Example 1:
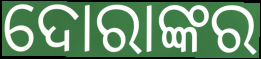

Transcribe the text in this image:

ଦୋରାଙ୍କର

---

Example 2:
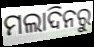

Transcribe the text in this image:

ମଲାଦିନରୁ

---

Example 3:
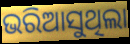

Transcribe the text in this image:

ଭରିଆସୁଥିଲା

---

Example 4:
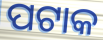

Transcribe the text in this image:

ପଟାକ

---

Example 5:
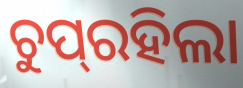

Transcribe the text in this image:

ଚୁପ୍‌ରହିଲା